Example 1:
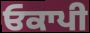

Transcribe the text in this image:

ਓਕਾਪੀ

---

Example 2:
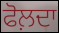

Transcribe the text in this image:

ਫੋਲ਼ਦਾ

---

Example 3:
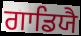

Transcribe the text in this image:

ਗਾਡਿਯੈ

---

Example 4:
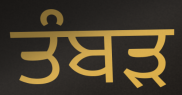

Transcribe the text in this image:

ਤੰਬੜ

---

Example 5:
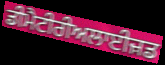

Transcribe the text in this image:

ਡੀਮੈਟੀਰੀਅਲਾਈਜ਼ਡ